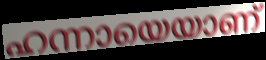
ഹന്നായെയാണ്